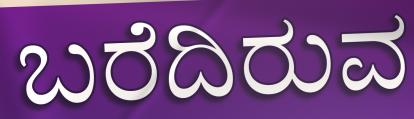
ಬರೆದಿರುವ